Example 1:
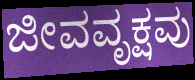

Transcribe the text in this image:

ಜೀವವೃಕ್ಷವು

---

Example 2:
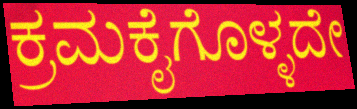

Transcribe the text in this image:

ಕ್ರಮಕೈಗೊಳ್ಳದೇ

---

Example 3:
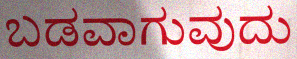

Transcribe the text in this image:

ಬಡವಾಗುವುದು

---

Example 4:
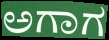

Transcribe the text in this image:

ಅಗಾಗ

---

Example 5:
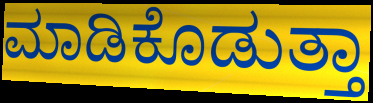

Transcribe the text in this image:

ಮಾಡಿಕೊಡುತ್ತಾ